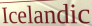
Icelandic